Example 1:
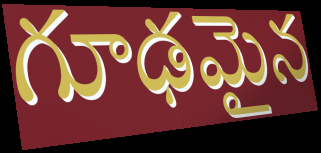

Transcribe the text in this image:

గూఢమైన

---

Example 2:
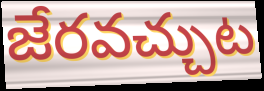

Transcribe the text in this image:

జేరవచ్చుట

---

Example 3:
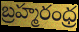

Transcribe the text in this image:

బ్రహ్మరంధ్ర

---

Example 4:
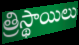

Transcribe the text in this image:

త్రిస్థాయిలు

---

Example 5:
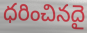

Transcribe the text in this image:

ధరించినదై